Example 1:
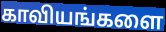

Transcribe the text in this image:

காவியங்களை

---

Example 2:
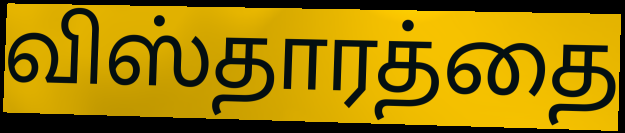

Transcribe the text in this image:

விஸ்தாரத்தை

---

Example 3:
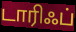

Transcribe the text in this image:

டாரிஃப்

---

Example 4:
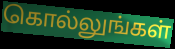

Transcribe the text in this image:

கொல்லுங்கள்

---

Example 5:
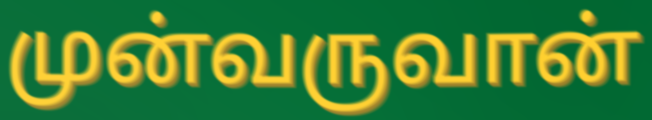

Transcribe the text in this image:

முன்வருவான்